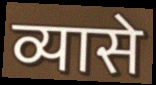
व्यासे